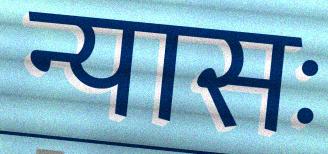
न्यासः